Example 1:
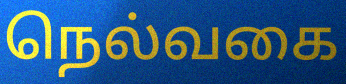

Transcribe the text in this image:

நெல்வகை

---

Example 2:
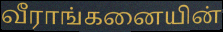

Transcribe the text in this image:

வீராங்கனையின்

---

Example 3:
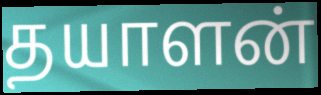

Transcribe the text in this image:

தயாளன்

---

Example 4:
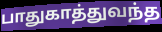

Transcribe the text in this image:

பாதுகாத்துவந்த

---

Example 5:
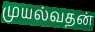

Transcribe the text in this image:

முயல்வதன்